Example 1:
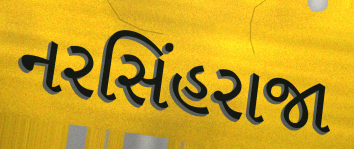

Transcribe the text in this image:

નરસિંહરાજા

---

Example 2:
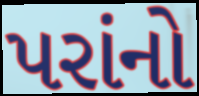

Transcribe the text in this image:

પરાંનો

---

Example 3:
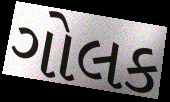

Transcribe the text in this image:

ગોલક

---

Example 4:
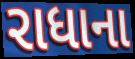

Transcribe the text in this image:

રાધાના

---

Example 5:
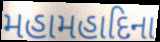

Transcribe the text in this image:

મહામહાદિના